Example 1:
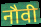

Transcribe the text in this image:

नौवी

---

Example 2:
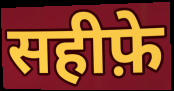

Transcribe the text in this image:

सहीफ़े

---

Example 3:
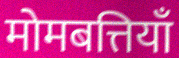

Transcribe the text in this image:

मोमबत्तियाँ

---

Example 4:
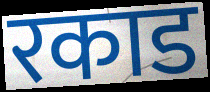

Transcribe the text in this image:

रकाड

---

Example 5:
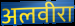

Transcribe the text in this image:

अलवीरा